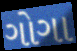
ગોગા